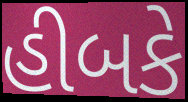
હીબકે